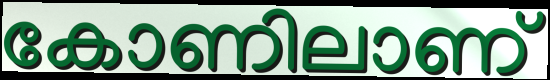
കോണിലാണ്